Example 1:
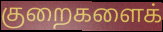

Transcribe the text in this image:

குறைகளைக்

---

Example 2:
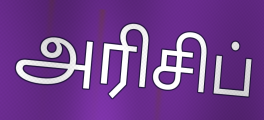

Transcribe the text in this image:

அரிசிப்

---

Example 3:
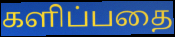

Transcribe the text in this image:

களிப்பதை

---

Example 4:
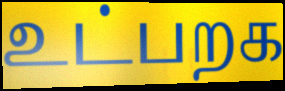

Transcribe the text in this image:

உட்பறக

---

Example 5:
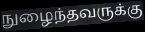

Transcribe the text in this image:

நுழைந்தவருக்கு